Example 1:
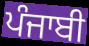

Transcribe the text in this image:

ਪੰਜਾਬੀ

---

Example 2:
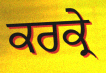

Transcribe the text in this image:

ਕਰਕ੍ਰੇ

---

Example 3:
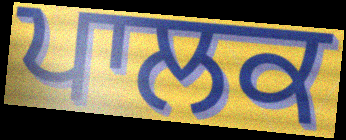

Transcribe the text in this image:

ਪਾਲਕ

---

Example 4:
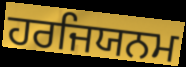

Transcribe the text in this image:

ਹਰਜਿਯਨਮ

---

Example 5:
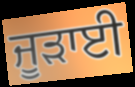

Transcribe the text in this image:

ਜੂੜਾਈ